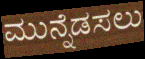
ಮುನ್ನೆಡಸಲು